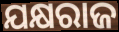
ଯକ୍ଷରାଜ